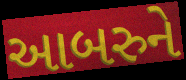
આબરુને